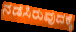
ನಡೆಸಿರುವುದಕ್ಕೆ